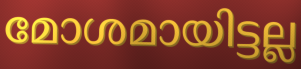
മോശമായിട്ടല്ല